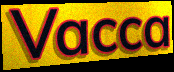
Vacca